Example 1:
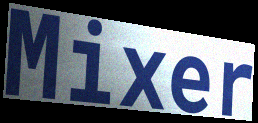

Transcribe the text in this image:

Mixer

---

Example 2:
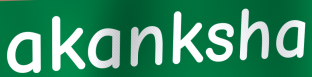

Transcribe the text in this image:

akanksha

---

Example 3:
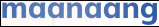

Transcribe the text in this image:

maanaang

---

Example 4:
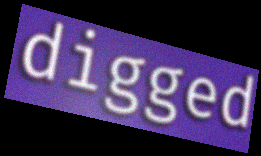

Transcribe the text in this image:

digged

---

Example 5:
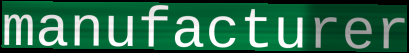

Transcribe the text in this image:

manufacturer